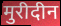
मुरीदीन